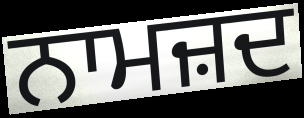
ਨਾਮਜ਼ਦ